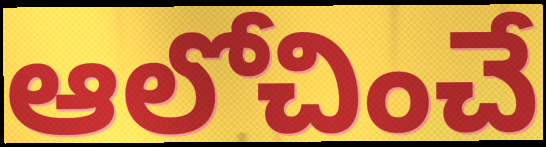
ఆలోచించే